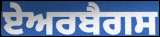
ਏਅਰਬੈਗਸ